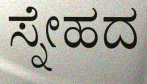
ಸ್ನೇಹದ